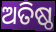
ଅତିଷ୍ଠ